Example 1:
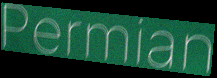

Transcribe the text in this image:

Permian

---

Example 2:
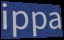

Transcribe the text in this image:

ippa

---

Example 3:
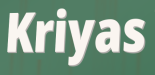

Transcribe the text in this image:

Kriyas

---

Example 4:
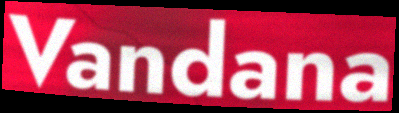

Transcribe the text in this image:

Vandana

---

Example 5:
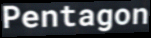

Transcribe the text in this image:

Pentagon